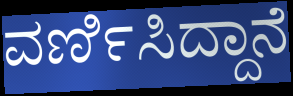
ವರ್ಣಿಸಿದ್ದಾನೆ